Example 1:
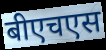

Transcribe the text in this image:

बीएचएस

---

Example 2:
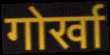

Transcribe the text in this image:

गोर्खा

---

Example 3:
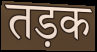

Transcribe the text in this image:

तड़क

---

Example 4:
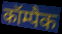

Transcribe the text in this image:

कॉम्पैक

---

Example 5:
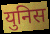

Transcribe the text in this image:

युनिस